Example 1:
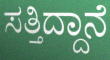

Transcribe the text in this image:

ಸತ್ತಿದ್ದಾನೆ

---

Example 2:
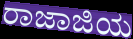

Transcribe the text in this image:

ರಾಜಾಜಿಯ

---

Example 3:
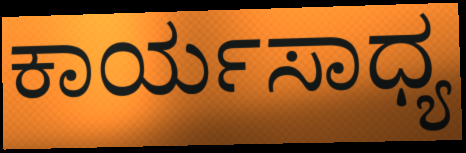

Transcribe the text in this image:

ಕಾರ್ಯಸಾಧ್ಯ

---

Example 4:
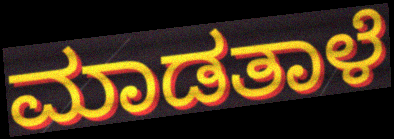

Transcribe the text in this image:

ಮಾಡತಾಳೆ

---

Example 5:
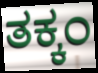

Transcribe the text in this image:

ತಕ್ಕಂ